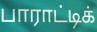
பாராட்டிக்